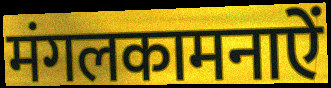
मंगलकामनाऐं